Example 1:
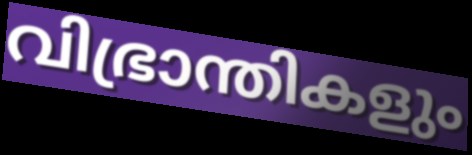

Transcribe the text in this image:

വിഭ്രാന്തികളും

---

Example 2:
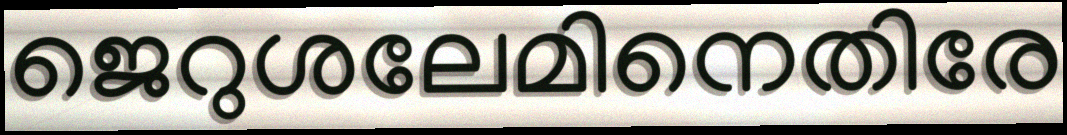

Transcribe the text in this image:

ജെറുശലേമിനെതിരേ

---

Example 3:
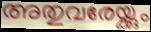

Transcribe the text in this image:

അതുവരേയ്ക്കും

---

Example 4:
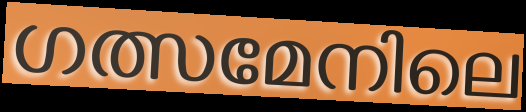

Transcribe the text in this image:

ഗത്സമേനിലെ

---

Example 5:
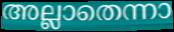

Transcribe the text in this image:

അല്ലാതെന്നാ